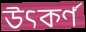
উৎকর্ণ